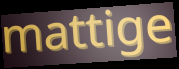
mattige